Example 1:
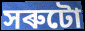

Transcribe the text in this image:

সৰুটো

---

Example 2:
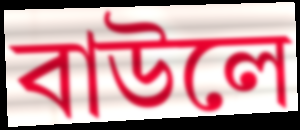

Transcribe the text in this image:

বাউলে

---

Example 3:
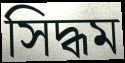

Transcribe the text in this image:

সিদ্ধম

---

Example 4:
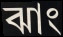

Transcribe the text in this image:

ঝাং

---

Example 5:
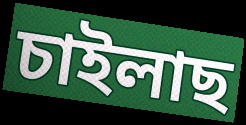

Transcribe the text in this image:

চাইলাছ